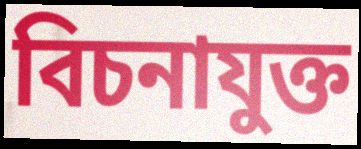
বিচনাযুক্ত